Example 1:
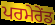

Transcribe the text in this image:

ਪਰਮੇਰੇਂਡ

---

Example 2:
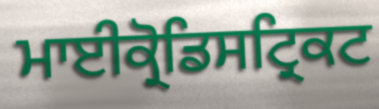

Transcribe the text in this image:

ਮਾਈਕ੍ਰੋਡਿਸਟ੍ਰਿਕਟ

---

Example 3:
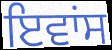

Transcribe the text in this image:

ਇਵਾਂਸ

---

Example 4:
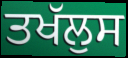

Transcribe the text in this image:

ਤਖੱਲੁਸ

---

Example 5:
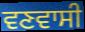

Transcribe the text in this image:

ਵਣਵਾਸੀ